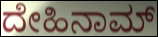
ದೇಹಿನಾಮ್